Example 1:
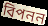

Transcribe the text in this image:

বিপনন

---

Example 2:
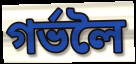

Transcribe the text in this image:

গৰ্ভলৈ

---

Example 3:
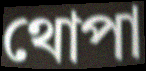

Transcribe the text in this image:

থোপা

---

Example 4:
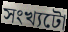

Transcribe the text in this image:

সংখ্যটো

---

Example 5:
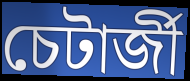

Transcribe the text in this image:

চেটাৰ্জী